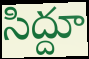
సిద్దూ